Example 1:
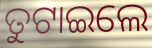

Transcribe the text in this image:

ତୁଟାଇଲେ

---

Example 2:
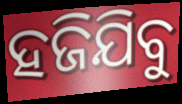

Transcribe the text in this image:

ହଜିଯିବୁ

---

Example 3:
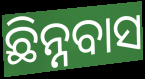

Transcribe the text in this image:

ଛିନ୍ନବାସ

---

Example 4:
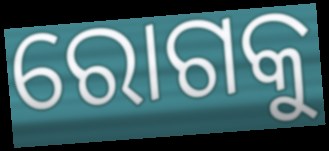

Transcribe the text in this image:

ରୋଗକୁ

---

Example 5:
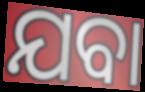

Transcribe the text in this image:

ଯବା